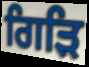
ਗਿੜਿ